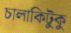
চালাকিটুকু